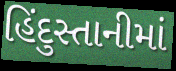
હિંદુસ્તાનીમાં